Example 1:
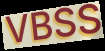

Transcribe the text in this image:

VBSS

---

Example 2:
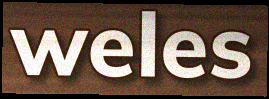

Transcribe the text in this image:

weles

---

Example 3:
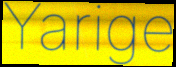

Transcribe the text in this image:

Yarige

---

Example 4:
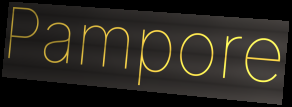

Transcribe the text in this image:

Pampore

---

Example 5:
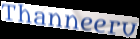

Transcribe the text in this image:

Thanneeru